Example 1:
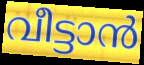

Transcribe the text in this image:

വീട്ടാൻ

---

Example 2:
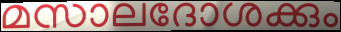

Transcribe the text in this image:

മസാലദോശക്കും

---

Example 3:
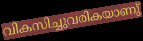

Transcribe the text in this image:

വികസിച്ചുവരികയാണു്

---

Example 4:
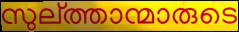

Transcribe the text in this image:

സുല്ത്താന്മാരുടെ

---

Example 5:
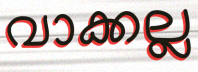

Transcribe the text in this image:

വാക്കല്ല